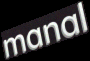
manal